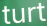
turt